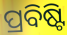
ପ୍ରବିଷ୍ଟି